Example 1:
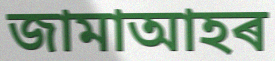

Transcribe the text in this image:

জামাআহৰ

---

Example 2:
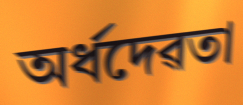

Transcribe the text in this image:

অৰ্ধদেৱতা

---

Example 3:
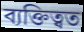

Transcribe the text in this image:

ব্যক্তিত্বত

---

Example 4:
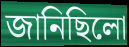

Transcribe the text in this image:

জানিছিলো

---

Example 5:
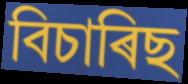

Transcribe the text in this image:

বিচাৰিছ